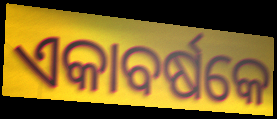
ଏକାବର୍ଷକେ